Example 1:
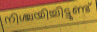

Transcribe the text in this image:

നിശ്ചയിച്ചിട്ടുണ്ട്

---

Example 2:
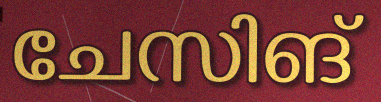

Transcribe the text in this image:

ചേസിങ്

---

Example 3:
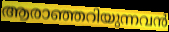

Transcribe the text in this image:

ആരാഞ്ഞറിയുന്നവൻ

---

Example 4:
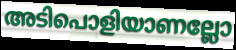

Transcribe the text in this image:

അടിപൊളിയാണല്ലോ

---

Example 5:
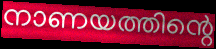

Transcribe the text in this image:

നാണയത്തിന്റെ